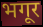
भगूर